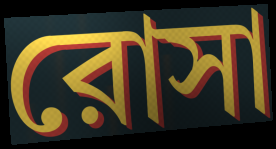
রোসা